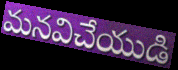
మనవిచేయుడి